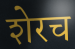
शेरच